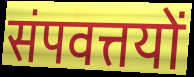
संपवत्तयों